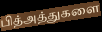
பித்அத்துகளை